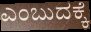
ಎಂಬುದಕ್ಕೆ